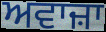
ਅਵਾਜ਼ਾ